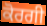
ਕੋਰਗੀ